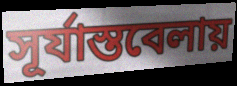
সূর্যাস্তবেলায়